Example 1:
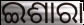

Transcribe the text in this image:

ଇଶାରା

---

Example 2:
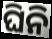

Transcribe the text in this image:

ଘିନି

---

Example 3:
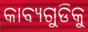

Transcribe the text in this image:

କାବ୍ୟଗୁଡିକୁ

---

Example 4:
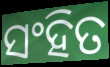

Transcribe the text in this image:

ସଂହିତ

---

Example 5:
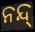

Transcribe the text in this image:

ନନ୍ଦ୍